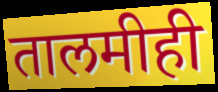
तालमीही